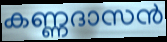
കണ്ണദാസൻ